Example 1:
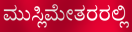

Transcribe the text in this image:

ಮುಸ್ಲಿಮೇತರರಲ್ಲಿ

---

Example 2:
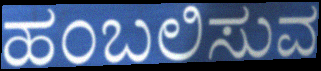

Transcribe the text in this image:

ಹಂಬಲಿಸುವ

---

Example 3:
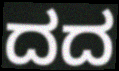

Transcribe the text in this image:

ದದ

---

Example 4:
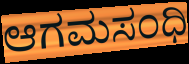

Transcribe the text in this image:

ಆಗಮಸಂಧಿ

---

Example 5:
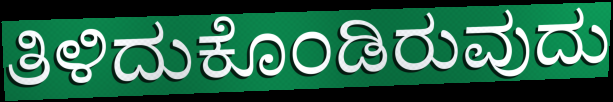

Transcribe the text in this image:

ತಿಳಿದುಕೊಂಡಿರುವುದು